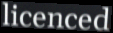
licenced